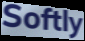
Softly